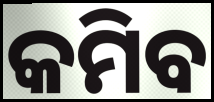
କମିବ